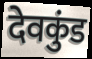
देवकुंड